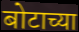
बोटाच्या